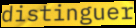
distinguer